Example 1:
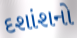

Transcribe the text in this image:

દશાંશનો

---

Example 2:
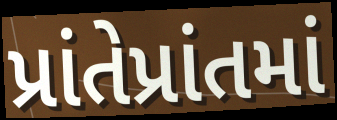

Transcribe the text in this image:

પ્રાંતેપ્રાંતમાં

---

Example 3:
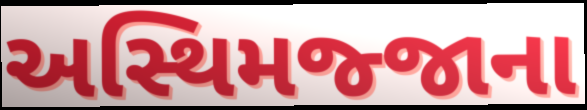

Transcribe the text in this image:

અસ્થિમજ્જાના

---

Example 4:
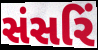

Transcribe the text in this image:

સંસરિં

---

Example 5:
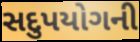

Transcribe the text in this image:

સદુપયોગની